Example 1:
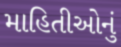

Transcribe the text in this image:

માહિતીઓનું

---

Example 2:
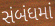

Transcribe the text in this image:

સંબંધમાં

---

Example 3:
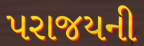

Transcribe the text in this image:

પરાજયની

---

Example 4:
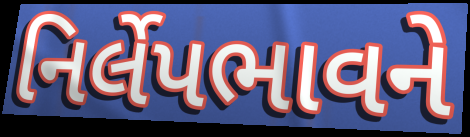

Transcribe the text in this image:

નિર્લેપભાવને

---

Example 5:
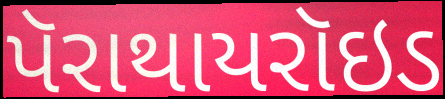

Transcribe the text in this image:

પૅરાથાયરૉઇડ